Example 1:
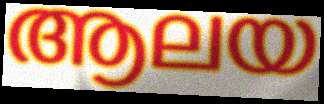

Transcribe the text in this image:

ആലയ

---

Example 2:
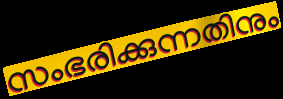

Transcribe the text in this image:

സംഭരിക്കുന്നതിനും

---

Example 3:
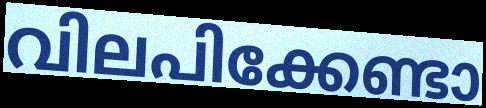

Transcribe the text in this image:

വിലപിക്കേണ്ടാ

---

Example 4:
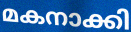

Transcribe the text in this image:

മകനാക്കി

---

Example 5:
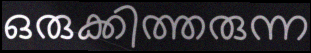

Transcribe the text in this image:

ഒരുക്കിത്തരുന്ന